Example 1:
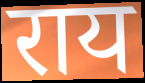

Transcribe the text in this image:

राय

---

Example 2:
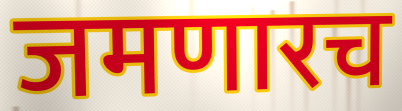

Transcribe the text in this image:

जमणारच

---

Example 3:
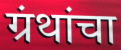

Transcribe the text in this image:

ग्रंथांचा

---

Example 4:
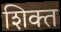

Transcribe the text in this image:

शिक्त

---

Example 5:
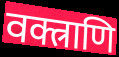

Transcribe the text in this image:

वक्त्राणि